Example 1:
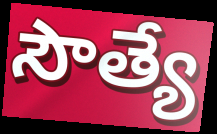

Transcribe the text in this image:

సౌత్యే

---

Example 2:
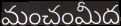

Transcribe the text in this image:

మంచంమీద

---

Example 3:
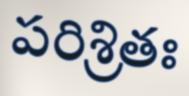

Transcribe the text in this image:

పరిశ్రితః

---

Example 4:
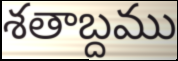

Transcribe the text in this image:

శతాబ్దము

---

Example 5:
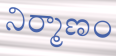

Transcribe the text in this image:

నిర్మాణం